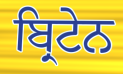
ਬ੍ਰਿਟੇਨ